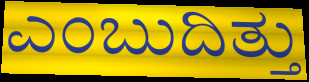
ಎಂಬುದಿತ್ತು